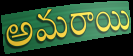
అమరాయి